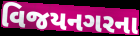
વિજયનગરના